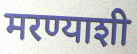
मरण्याशी